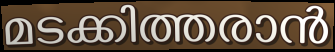
മടക്കിത്തരാൻ